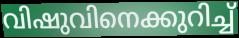
വിഷുവിനെക്കുറിച്ച്